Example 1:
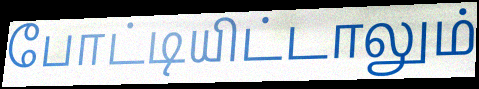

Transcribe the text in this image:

போட்டியிட்டாலும்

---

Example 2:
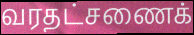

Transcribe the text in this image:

வரதட்சணைக்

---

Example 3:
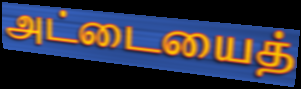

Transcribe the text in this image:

அட்டையைத்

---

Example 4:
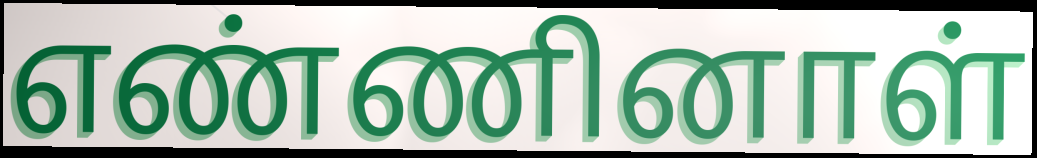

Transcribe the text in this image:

எண்ணினாள்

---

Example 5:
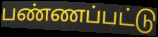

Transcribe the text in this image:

பண்ணப்பட்டு